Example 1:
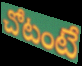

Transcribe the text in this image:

చోటంటే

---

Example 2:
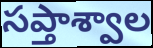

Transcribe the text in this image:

సప్తాశ్వాల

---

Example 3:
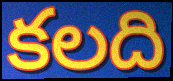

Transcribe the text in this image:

కలది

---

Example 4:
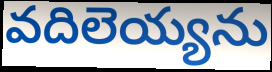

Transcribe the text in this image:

వదిలెయ్యను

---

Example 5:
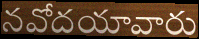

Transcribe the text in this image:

నవోదయావారు